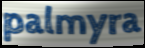
palmyra